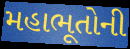
મહાભૂતોની